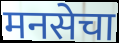
मनसेचा